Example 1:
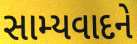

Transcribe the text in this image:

સામ્યવાદને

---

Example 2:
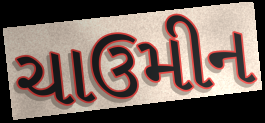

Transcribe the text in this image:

ચાઉમીન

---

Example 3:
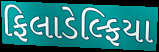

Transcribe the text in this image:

ફિલાડેલ્ફિયા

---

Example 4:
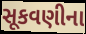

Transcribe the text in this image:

સૂકવણીના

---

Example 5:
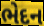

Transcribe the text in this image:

ભેદન